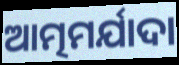
ଆତ୍ମମର୍ଯାଦା